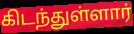
கிடந்துள்ளார்